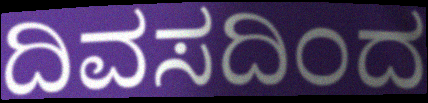
ದಿವಸದಿಂದ